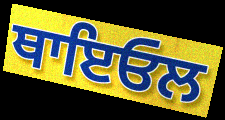
ਥਾਇਓਲ